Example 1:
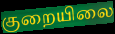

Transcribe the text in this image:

குறையிலை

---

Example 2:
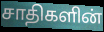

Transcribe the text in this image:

சாதிகளின்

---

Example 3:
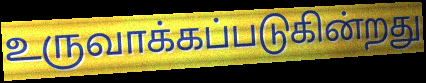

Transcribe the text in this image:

உருவாக்கப்படுகின்றது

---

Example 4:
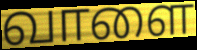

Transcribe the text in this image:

வாளை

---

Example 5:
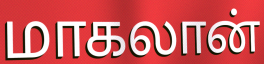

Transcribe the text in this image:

மாகலான்